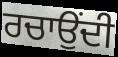
ਰਚਾਉਂਦੀ